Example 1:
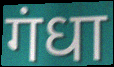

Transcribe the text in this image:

गंधा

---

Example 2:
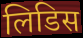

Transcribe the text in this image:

लिडिस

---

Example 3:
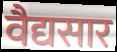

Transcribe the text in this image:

वैद्यसार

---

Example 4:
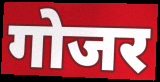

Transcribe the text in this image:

गोजर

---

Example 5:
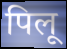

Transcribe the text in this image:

पिलू